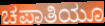
ಚಪಾತಿಯೂ